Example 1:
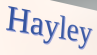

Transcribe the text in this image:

Hayley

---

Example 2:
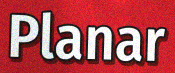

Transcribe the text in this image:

Planar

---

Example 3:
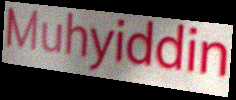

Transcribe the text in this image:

Muhyiddin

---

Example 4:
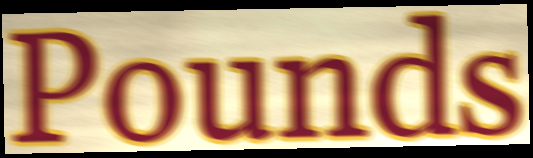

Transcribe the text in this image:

Pounds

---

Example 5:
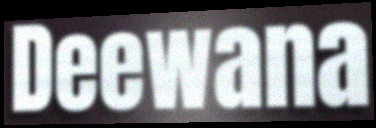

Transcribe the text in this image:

Deewana